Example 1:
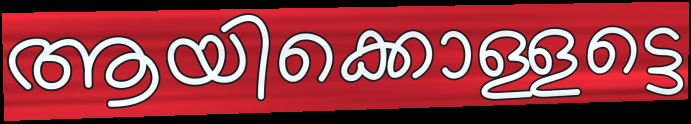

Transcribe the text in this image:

ആയിക്കൊള്ളട്ടെ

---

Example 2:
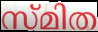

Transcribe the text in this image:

സ്മിത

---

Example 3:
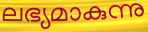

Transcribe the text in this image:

ലഭ്യമാകുന്നു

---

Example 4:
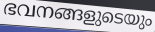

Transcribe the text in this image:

ഭവനങ്ങളുടെയും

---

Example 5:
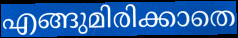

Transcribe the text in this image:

എങ്ങുമിരിക്കാതെ